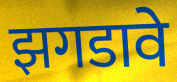
झगडावे